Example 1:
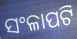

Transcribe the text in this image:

ସଂଳାପଟି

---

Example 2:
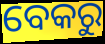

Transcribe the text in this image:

ବେକରୁ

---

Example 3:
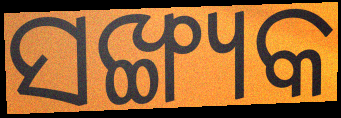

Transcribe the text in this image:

ସଙ୍ଖ୍ୟକ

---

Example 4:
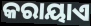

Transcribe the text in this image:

କରାୟାଏ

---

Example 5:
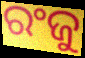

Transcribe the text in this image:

ରଂଜୁ